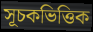
সূচকভিত্তিক